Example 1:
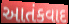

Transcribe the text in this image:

આતંકવાદ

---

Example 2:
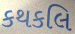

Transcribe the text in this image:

કથકલિ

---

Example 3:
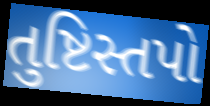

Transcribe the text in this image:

તુષ્ટિસ્તપો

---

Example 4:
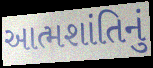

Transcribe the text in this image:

આત્મશાંતિનું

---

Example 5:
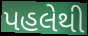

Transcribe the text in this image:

પહલેથી